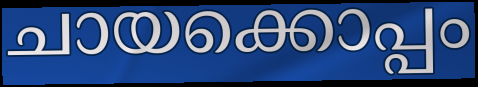
ചായക്കൊപ്പം